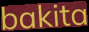
bakita